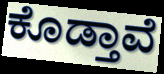
ಕೊಡ್ತಾವೆ